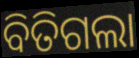
ବିତିଗଲା